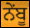
ਨੇਂਬੂ